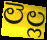
లెల్ల